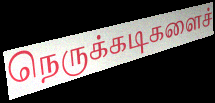
நெருக்கடிகளைச்